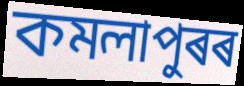
কমলাপুৰৰ